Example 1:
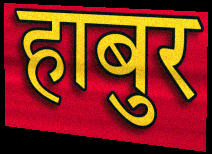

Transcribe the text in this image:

हाबुर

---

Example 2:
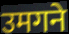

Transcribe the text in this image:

उमगने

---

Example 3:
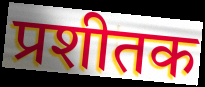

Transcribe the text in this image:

प्रशीतक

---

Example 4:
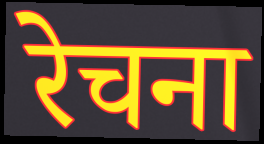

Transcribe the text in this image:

रेचना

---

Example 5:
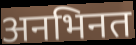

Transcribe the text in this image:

अनभिनत